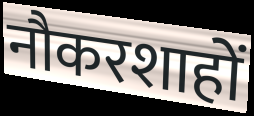
नौकरशाहों